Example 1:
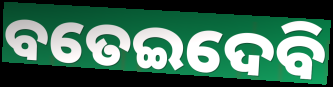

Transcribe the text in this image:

ବତେଇଦେବି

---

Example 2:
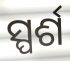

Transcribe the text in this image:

ସ୍ପର୍ଶ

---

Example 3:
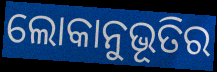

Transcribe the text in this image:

ଲୋକାନୁଭୂତିର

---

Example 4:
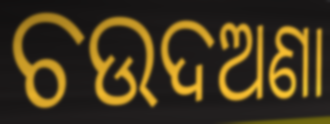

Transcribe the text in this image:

ଚଉଦଅଣା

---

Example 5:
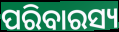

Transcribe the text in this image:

ପରିବାରସ୍ୟ